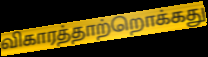
விகாரத்தாற்றொக்கது